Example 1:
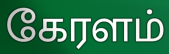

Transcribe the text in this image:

கேரளம்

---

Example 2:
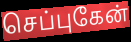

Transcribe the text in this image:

செப்புகேன்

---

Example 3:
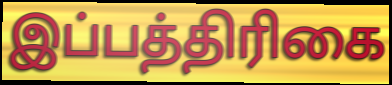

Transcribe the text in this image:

இப்பத்திரிகை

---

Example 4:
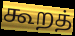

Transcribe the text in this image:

கூறத்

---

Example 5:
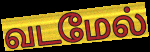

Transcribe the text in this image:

வடமேல்